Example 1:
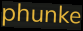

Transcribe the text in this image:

phunke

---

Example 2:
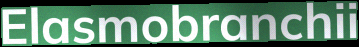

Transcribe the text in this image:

Elasmobranchii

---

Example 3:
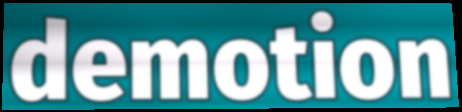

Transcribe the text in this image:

demotion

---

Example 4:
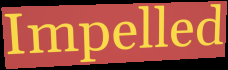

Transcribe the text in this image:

Impelled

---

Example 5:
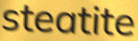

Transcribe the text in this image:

steatite